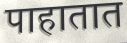
पाहातात